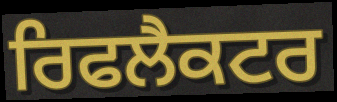
ਰਿਫਲੈਕਟਰ